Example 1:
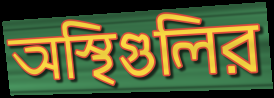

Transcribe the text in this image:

অস্থিগুলির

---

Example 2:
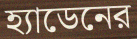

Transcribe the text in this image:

হ্যাডেনের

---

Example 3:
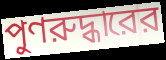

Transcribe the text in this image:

পুণরুদ্ধারের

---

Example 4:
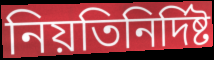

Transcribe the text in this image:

নিয়তিনির্দিষ্ট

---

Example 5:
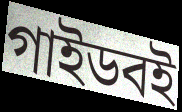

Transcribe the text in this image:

গাইডবই